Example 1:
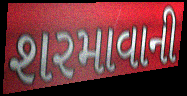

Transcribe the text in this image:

શરમાવાની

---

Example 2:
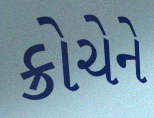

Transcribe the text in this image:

ક્રોચેને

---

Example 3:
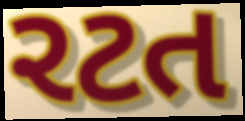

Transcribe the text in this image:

રટત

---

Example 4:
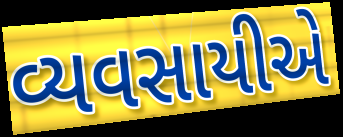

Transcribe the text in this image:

વ્યવસાયીએ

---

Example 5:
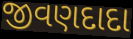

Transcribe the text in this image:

જીવણદાદા